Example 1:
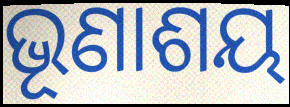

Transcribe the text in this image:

ଭୂଣାଶୟ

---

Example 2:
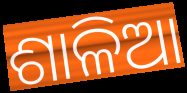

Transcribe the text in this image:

ଶାଳିଆ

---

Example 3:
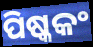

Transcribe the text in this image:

ପିଷ୍କକଂ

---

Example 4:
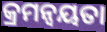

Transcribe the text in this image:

କ୍ରମନ୍ବୟତା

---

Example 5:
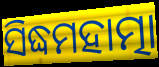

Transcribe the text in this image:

ସିଦ୍ଧମହାତ୍ମା